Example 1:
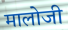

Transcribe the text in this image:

मालोजी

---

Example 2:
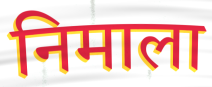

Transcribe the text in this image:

निमाला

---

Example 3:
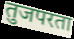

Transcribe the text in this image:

तुजपरता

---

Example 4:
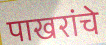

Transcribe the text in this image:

पाखरांचे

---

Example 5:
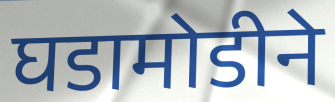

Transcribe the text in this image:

घडामोडीने